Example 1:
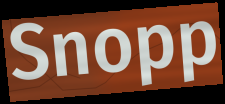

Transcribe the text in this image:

Snopp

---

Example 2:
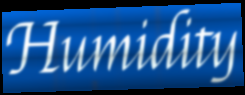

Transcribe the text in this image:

Humidity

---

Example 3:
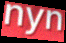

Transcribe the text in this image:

nyn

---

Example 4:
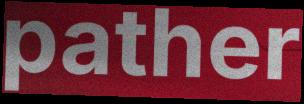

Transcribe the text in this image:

pather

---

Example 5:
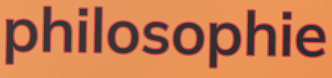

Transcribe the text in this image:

philosophie